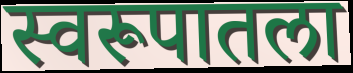
स्वरूपातला